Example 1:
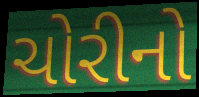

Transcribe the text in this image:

ચોરીનો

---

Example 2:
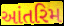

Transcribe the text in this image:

આંતરિમ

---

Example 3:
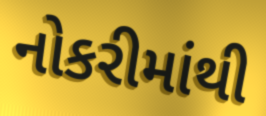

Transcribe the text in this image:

નોકરીમાંથી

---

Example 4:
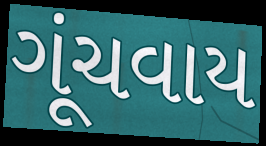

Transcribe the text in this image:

ગૂંચવાય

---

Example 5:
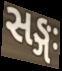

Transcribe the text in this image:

સઙ્ગઃ